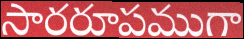
సారరూపముగా